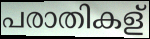
പരാതികള്